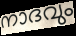
നാദവും